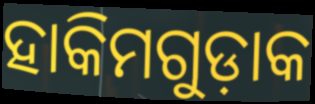
ହାକିମଗୁଡ଼ାକ